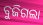
ବୁଜିଗଲା